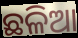
ଛଳିଆ